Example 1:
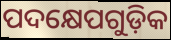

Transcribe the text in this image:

ପଦକ୍ଷେପଗୁଡ଼ିକ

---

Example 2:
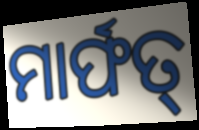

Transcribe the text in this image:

ମାର୍ଫତ୍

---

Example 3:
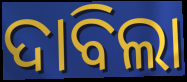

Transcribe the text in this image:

ଦାବିଲା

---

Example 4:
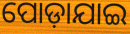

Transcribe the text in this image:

ପୋଡ଼ାଯାଇ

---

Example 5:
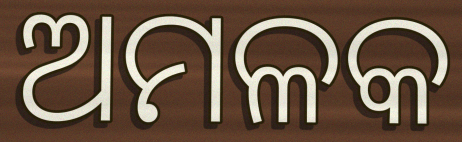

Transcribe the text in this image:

ଅମଳକ